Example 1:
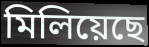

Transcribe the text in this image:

মিলিয়েছে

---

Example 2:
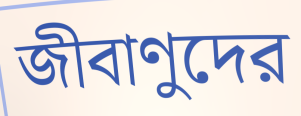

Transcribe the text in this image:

জীবাণুদের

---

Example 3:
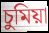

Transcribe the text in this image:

চুমিয়া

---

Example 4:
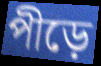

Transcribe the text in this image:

পীড়ে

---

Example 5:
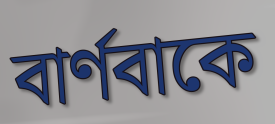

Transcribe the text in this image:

বার্ণবাকে